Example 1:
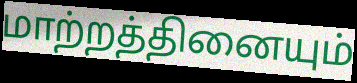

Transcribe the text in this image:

மாற்றத்தினையும்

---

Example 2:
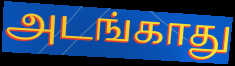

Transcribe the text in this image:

அடங்காது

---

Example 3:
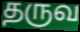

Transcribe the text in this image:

தருவ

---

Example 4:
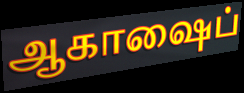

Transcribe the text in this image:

ஆகாஷைப்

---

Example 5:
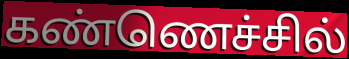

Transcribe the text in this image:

கண்ணெச்சில்